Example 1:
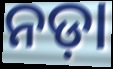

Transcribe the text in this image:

ନଡ଼ା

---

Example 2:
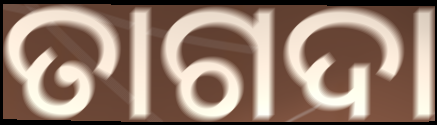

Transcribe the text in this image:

ତାଗଦା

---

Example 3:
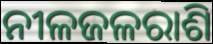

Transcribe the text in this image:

ନୀଳଜଳରାଶି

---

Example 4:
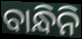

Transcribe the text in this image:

ବାନ୍ଧିନି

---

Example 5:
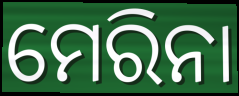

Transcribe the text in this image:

ମେରିନା